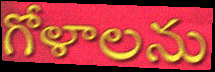
గోళాలను